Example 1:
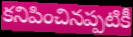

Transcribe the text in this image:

కనిపించినప్పటికీ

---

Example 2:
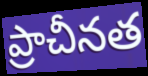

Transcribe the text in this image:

ప్రాచీనత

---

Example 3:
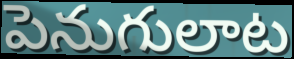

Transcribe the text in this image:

పెనుగులాట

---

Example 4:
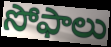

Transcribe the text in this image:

సోఫాలు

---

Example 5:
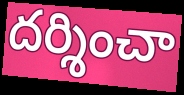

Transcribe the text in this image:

దర్శించా